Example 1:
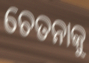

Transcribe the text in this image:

ଚେତନାକୁ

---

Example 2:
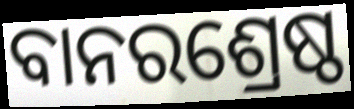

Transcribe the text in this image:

ବାନରଶ୍ରେଷ୍ଠ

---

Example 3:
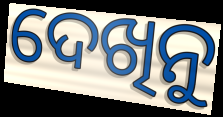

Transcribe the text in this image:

ଦେଖିନୁ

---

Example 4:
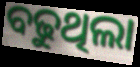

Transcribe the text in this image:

ବଢୁଥିଲା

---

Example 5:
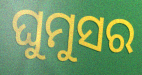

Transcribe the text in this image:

ଘୁମୁସର